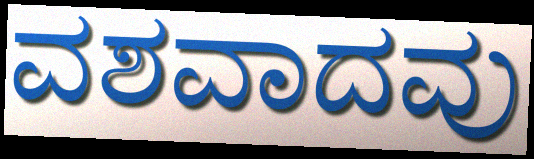
ವಶವಾದವು